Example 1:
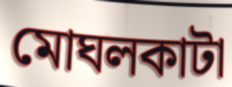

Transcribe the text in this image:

মোঘলকাটা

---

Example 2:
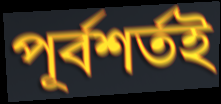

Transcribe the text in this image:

পূর্বশর্তই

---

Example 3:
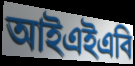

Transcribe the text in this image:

আইএইএবি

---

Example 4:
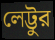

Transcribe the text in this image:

লেট্টুর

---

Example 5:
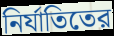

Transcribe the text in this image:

নির্যাতিতের